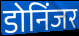
डोनिंजर